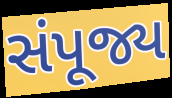
સંપૂજ્ય